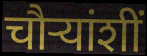
चौर्‍यांशीं